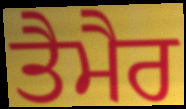
ਤੈਮੈਰ